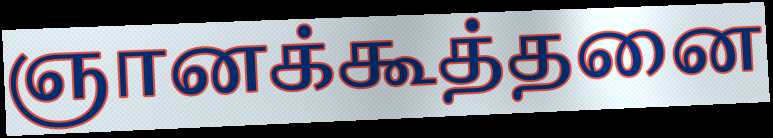
ஞானக்கூத்தனை